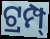
ଟ୍ରମ୍ପ୍